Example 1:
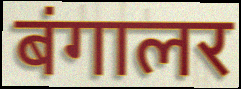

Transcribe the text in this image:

बंगालर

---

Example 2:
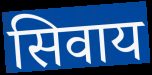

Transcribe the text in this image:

सिवाय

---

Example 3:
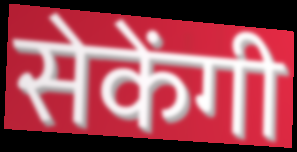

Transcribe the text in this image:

सेकेंगी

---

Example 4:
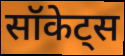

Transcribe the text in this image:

सॉकेट्स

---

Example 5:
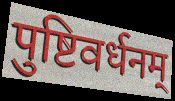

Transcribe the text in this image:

पुष्टिवर्धनम्